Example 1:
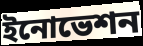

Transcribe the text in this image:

ইনোভেশন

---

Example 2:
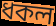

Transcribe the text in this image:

ধকল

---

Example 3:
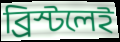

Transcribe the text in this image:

ব্রিস্টলেই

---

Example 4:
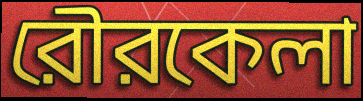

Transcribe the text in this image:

রৌরকেলা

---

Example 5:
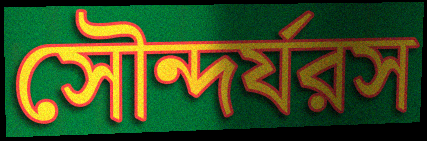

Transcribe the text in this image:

সৌন্দর্যরস